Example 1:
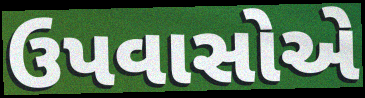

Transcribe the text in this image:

ઉપવાસોએ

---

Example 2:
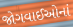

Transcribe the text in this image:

જોગવાઈઓનાં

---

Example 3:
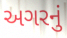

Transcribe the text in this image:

અગરનું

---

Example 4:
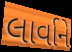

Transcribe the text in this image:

લાર્વાને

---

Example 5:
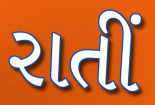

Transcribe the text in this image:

રાતીં